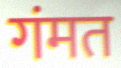
गंमत